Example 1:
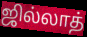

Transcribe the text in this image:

ஜில்லாத்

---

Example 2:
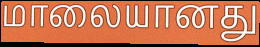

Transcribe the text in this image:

மாலையானது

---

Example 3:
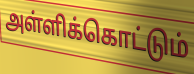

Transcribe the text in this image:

அள்ளிக்கொட்டும்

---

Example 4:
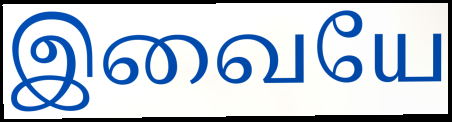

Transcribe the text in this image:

இவையே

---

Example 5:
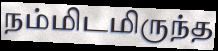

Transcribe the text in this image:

நம்மிடமிருந்த